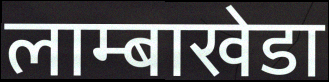
लाम्बाखेडा